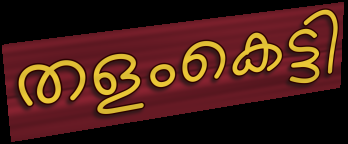
തളംകെട്ടി